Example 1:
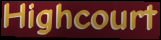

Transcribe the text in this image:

Highcourt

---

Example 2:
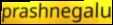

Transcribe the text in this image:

prashnegalu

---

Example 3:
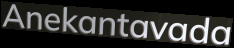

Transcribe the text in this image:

Anekantavada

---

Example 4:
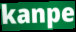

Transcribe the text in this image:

kanpe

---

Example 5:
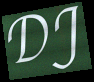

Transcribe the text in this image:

DJ